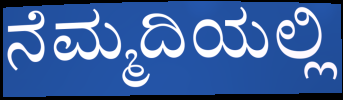
ನೆಮ್ಮದಿಯಲ್ಲಿ